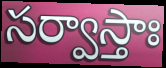
సర్వాస్తాః